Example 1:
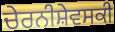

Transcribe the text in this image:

ਚੇਰਨੀਸ਼ੇਵਸਕੀ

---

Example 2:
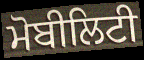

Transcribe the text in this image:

ਮੋਬੀਲਿਟੀ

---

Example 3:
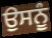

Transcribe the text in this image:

ਉਸਨੂੰ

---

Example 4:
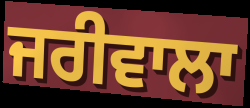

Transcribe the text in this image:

ਜਰੀਵਾਲਾ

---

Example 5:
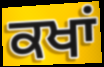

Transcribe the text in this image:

ਕਖਾਂ